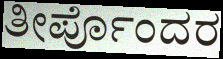
ತೀರ್ಪೊಂದರ